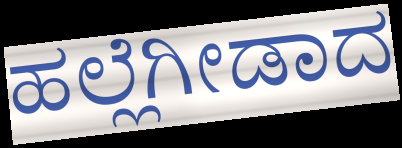
ಹಲ್ಲೆಗೀಡಾದ